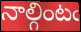
నాల్గింటఁ